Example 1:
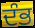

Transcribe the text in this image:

ਦੰਭ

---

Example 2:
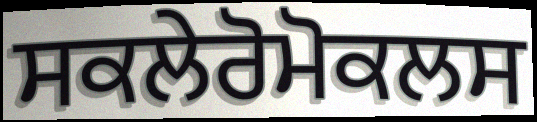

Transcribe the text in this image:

ਸਕਲੇਰੋਮੋਕਲਸ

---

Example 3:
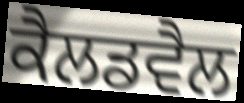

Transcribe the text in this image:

ਕੈਲਡਵੈਲ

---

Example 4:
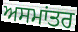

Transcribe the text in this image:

ਅਸਮਾਂਤਰ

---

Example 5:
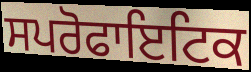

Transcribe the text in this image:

ਸਪਰੋਫਾਇਟਿਕ